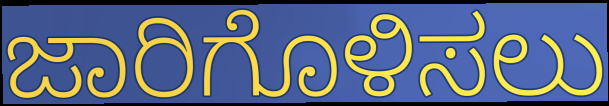
ಜಾರಿಗೊಳಿಸಲು